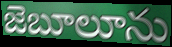
జెబూలూను